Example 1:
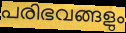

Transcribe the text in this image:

പരിഭവങ്ങളും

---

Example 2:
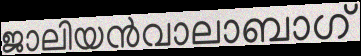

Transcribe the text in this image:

ജാലിയൻവാലാബാഗ്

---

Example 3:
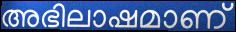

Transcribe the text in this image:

അഭിലാഷമാണ്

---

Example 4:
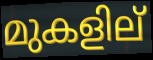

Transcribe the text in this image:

മുകളില്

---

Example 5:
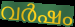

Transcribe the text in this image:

വർഷം